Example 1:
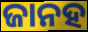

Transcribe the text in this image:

ଜାନହ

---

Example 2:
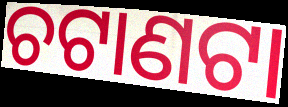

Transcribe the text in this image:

ଚଟାଣଟା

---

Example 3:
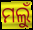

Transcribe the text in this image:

ମଲୁଁ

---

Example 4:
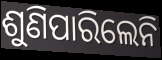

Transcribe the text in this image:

ଶୁଣିପାରିଲେନି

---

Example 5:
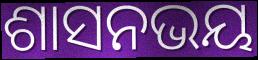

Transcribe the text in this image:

ଶାସନଭୟ